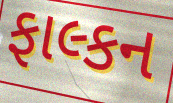
ફાલ્કન